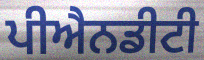
ਪੀਐਨਡੀਟੀ